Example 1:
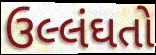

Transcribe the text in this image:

ઉલ્લંઘતો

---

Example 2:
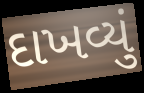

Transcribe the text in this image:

દાખવ્યું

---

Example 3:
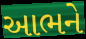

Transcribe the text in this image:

આભને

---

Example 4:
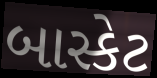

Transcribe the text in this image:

બાસ્કેટ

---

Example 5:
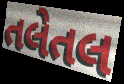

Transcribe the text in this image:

તલેતલ